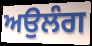
ਅਉਲੰਗ